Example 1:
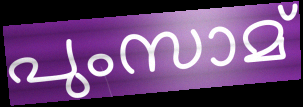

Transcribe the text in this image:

പുംസാമ്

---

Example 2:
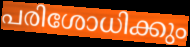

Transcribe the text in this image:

പരിശോധിക്കും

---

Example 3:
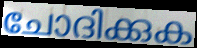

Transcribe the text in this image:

ചോദിക്കുക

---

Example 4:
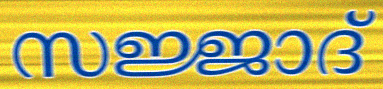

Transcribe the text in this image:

സജ്ജാദ്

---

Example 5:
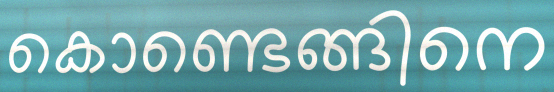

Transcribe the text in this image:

കൊണ്ടെങ്ങിനെ